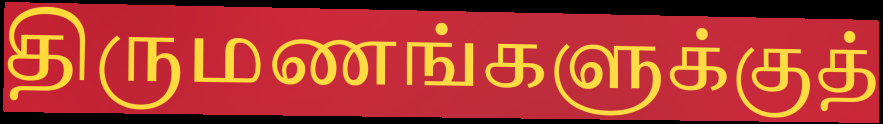
திருமணங்களுக்குத்